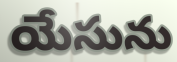
యేసును